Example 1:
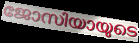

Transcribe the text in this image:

ജോസിയായുടെ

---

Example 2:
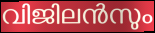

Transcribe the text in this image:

വിജിലൻസും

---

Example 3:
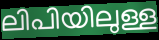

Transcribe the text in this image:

ലിപിയിലുള്ള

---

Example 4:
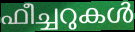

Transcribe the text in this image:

ഫീച്ചറുകൾ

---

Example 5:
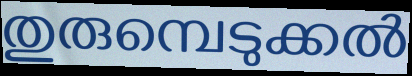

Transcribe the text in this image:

തുരുമ്പെടുക്കൽ